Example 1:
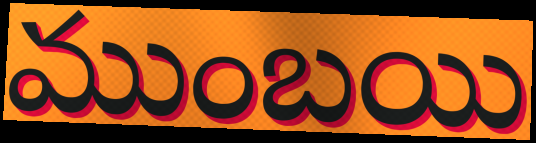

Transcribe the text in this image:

ముంబయి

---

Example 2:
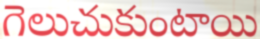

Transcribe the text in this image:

గెలుచుకుంటాయి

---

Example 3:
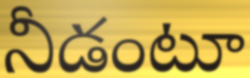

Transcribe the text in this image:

నీడంటూ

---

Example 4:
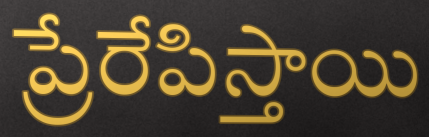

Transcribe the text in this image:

ప్రేరేపిస్తాయి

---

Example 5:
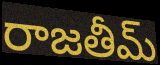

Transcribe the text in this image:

రాజతీమ్